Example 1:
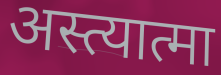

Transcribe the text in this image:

अस्त्यात्मा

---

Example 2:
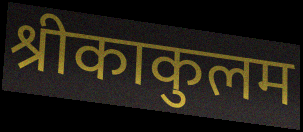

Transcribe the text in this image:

श्रीकाकुलम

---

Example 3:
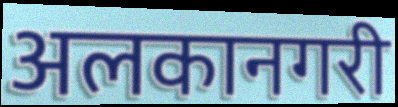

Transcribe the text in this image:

अलकानगरी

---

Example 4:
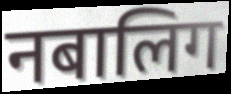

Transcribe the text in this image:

नबालिग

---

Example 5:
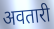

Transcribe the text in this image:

अवतारी